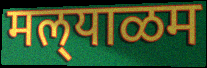
मल्याळम